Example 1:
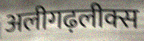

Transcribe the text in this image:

अलीगढ़लीक्स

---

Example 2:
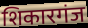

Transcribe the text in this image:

शिकारगंज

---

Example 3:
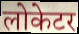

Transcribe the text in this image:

लोकेटर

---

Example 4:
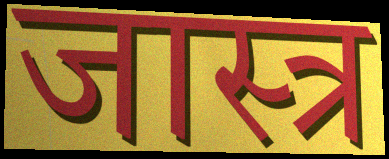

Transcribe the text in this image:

जास्त्र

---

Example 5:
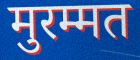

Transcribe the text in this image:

मुरम्मत